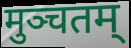
मुञ्चतम्